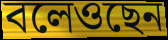
বলেওছেন